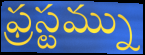
ఫ్రస్టమ్ను